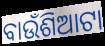
ବାଉଁଶିଆଟା